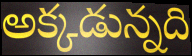
అక్కడున్నది